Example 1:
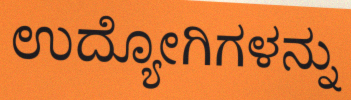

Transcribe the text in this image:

ಉದ್ಯೋಗಿಗಳನ್ನು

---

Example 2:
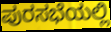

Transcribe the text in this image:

ಪುರಸಭೆಯಲ್ಲಿ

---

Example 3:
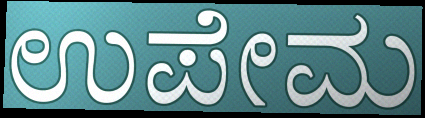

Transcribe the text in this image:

ಉಪೇಮ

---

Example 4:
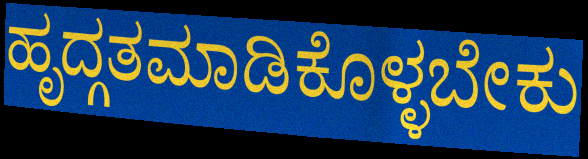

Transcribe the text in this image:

ಹೃದ್ಗತಮಾಡಿಕೊಳ್ಳಬೇಕು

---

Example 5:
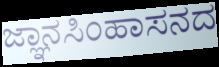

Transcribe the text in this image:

ಜ್ಞಾನಸಿಂಹಾಸನದ